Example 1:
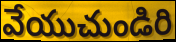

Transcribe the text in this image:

వేయుచుండిరి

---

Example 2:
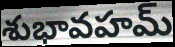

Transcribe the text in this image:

శుభావహమ్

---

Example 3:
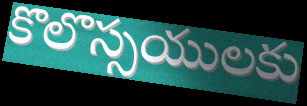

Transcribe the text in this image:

కొలొస్సయులకు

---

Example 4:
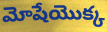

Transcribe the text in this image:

మోషేయొక్క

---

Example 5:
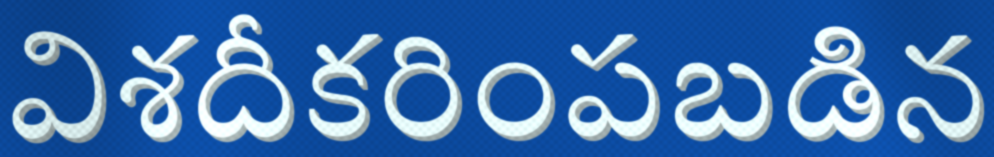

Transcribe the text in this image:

విశదీకరింపబడిన